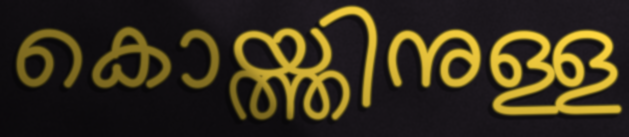
കൊയ്ത്തിനുള്ള